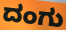
ದಂಗು